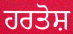
ਹਰਤੋਸ਼